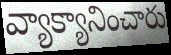
వ్యాక్యానించారు